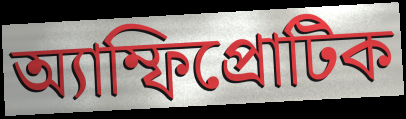
অ্যাম্ফিপ্রোটিক